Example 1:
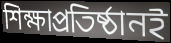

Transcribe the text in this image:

শিক্ষাপ্রতিষ্ঠানই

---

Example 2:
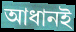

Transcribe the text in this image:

আধানই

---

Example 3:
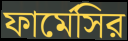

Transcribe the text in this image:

ফার্মেসির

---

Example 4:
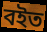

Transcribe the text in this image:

বইত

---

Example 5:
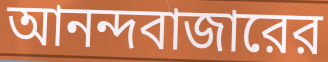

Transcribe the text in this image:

আনন্দবাজারের